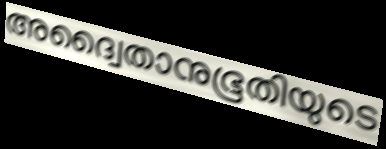
അദ്വൈതാനുഭൂതിയുടെ